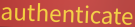
authenticate